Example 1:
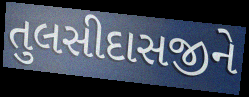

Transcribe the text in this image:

તુલસીદાસજીને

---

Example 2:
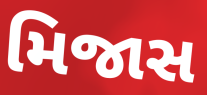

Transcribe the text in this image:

મિજાસ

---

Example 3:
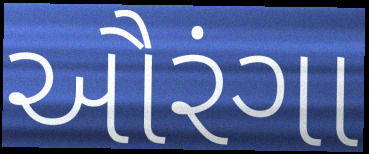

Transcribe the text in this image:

ઔરંગા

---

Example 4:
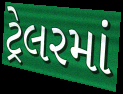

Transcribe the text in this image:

ટ્રેલરમાં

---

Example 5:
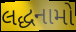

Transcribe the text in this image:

લદ્ધનામો